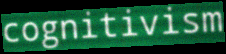
cognitivism